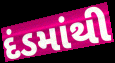
દંડમાંથી